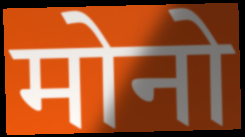
मोनो